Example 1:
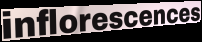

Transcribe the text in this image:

inflorescences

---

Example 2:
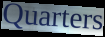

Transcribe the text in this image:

Quarters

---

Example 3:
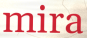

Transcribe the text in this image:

mira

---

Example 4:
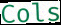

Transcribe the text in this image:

Cols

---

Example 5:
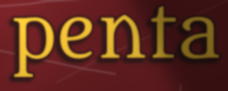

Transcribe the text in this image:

penta